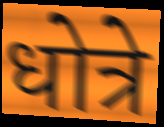
धोत्रे